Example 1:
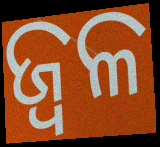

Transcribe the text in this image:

ଜ୍ୱଳ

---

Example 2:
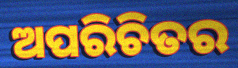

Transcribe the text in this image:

ଅପରିଚିତର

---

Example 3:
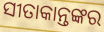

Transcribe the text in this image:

ସୀତାକାନ୍ତଙ୍କର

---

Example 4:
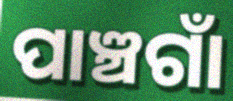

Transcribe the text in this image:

ପାଞ୍ଚଗାଁ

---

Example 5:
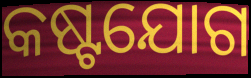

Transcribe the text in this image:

କଷ୍ଟଯୋଗ